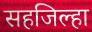
सहजिल्हा